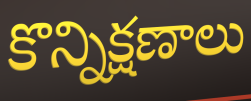
కొన్నిక్షణాలు